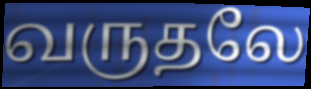
வருதலே